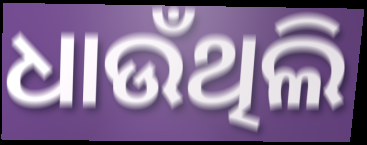
ଧାଉଁଥିଲି